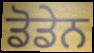
ਡੋਡੇਨ